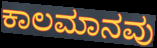
ಕಾಲಮಾನವು